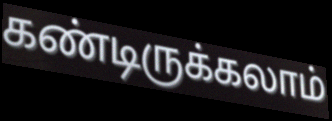
கண்டிருக்கலாம்